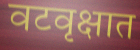
वटवृक्षात